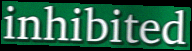
inhibited